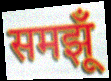
समझूँ